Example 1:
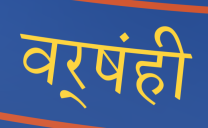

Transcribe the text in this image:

वर्षंही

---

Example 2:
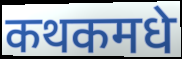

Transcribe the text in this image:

कथकमधे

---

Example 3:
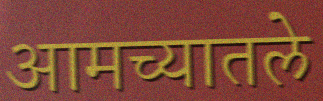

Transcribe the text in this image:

आमच्यातले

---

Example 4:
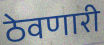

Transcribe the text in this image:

ठेवणारी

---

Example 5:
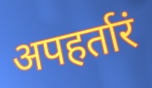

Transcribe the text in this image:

अपहर्तारं